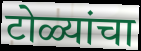
टोळ्यांचा